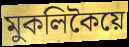
মুকলিকৈয়ে